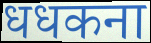
धधकना